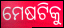
ମେଷଟିକୁ